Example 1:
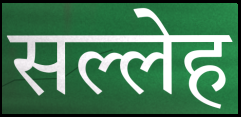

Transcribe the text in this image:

सल्लेह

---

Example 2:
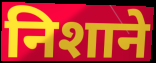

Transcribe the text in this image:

निशाने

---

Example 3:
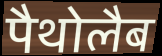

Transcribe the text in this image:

पैथोलैब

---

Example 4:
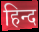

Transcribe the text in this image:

हिन्द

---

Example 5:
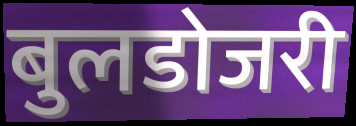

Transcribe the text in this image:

बुलडोजरी